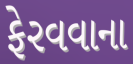
ફેરવવાના